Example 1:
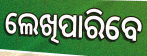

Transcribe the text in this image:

ଲେଖିପାରିବେ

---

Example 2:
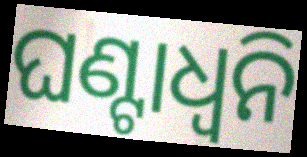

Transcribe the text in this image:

ଘଣ୍ଟାଧ୍ୱନି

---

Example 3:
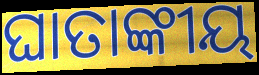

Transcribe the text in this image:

ଘାତାଙ୍କୀୟ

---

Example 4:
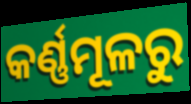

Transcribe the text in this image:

କର୍ଣ୍ଣମୂଳରୁ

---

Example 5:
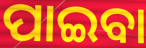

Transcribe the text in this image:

ପାଇବା